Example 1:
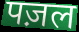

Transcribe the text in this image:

पज़ल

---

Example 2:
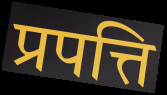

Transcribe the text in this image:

प्रपत्ति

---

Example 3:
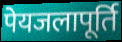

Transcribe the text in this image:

पेयजलापूर्ति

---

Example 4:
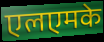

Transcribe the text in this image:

एलएमके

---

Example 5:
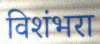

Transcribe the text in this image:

विशंभरा